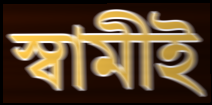
স্বামীই